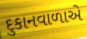
દુકાનવાળાએ